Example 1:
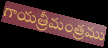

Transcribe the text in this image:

గాయత్రీమంత్రము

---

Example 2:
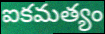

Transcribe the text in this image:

ఐకమత్యం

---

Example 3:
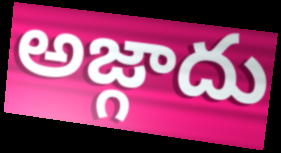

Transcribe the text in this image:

అజ్గాదు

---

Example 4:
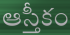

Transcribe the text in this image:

ఆస్తీకం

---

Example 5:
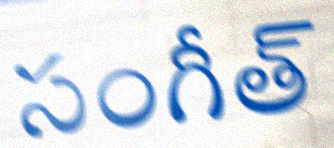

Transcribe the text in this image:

సంగీత్